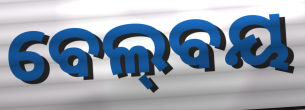
ବେଲ୍‍ବୟ